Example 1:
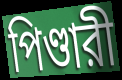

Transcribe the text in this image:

পিণ্ডারী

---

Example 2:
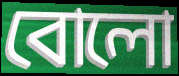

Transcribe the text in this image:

বোলো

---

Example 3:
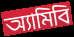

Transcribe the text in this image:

অ্যামিবি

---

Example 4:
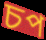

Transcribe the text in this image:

চপ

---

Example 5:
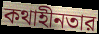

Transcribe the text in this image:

কথাহীনতার